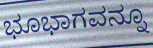
ಭೂಭಾಗವನ್ನೂ